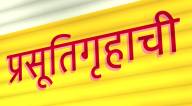
प्रसूतिगृहाची